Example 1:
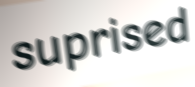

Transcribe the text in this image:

suprised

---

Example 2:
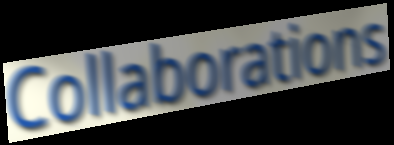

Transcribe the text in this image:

Collaborations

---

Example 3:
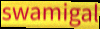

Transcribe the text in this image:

swamigal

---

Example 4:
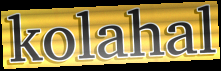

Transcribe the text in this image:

kolahal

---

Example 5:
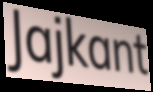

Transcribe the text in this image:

Jajkant